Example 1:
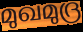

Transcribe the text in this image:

മുഖമുദ്ര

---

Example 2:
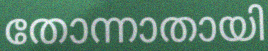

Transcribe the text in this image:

തോന്നാതായി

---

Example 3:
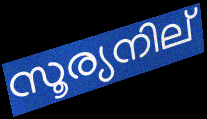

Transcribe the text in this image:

സൂര്യനില്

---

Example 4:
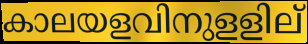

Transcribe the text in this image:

കാലയളവിനുളളില്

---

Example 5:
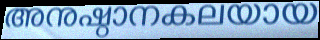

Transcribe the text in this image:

അനുഷ്ഠാനകലയായ